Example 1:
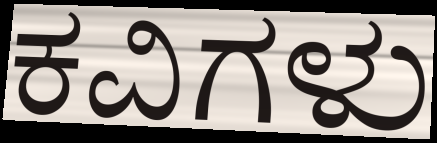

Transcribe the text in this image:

ಕವಿಗಳು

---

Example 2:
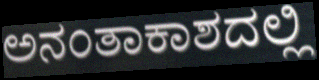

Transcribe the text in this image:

ಅನಂತಾಕಾಶದಲ್ಲಿ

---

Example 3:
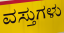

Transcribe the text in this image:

ವಸ್ತುಗಳು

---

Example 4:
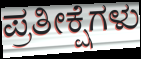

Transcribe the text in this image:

ಪ್ರತೀಕ್ಷೆಗಳು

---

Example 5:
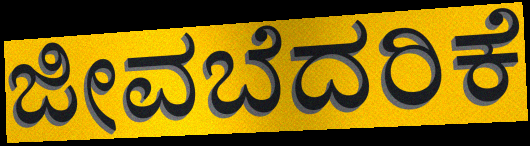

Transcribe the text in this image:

ಜೀವಬೆದರಿಕೆ